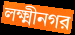
লক্ষ্মীনগর